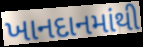
ખાનદાનમાંથી